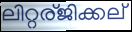
ലിറ്റര്ജിക്കല്